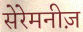
सेरेमनीज़